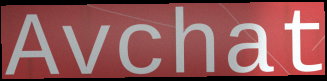
Avchat